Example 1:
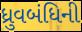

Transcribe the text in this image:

ધ્રુવબંધિની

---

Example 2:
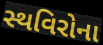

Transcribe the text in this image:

સ્થવિરોના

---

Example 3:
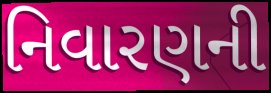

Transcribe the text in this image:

નિવારણની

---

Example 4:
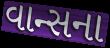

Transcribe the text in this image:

વાન્સના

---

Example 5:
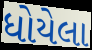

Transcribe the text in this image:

ધોયેલા